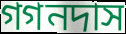
গগনদাস